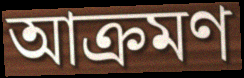
আক্রমণ